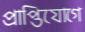
প্রাপ্তিযোগে